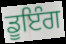
ਡੂਇੰਗ